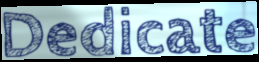
Dedicate